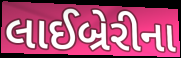
લાઈબ્રેરીના